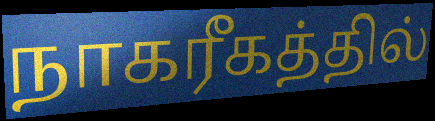
நாகரீகத்தில்